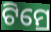
ଟିମ୍ରେ